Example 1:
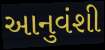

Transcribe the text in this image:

આનુવંશી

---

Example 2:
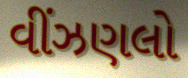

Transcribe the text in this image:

વીંઝણલો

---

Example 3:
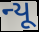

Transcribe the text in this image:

ન્યૂ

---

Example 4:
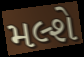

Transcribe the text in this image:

મલ્શે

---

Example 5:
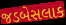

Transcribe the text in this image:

જડબેસલાક